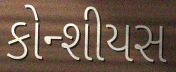
કોન્શીયસ